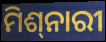
ମିଶ୍‍ନାରୀ